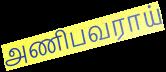
அணிபவராய்